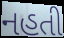
નહતી